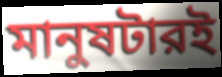
মানুষটারই